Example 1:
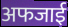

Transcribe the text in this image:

अफजाई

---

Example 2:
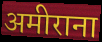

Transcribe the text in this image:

अमीराना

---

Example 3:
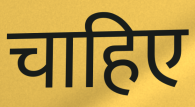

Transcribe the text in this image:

चाहिए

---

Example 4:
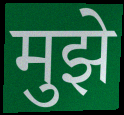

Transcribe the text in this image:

मुझे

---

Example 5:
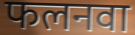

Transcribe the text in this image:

फलनवा